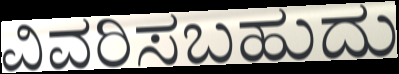
ವಿವರಿಸಬಹುದು